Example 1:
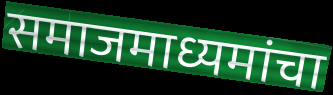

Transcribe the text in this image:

समाजमाध्यमांचा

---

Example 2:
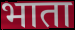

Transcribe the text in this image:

भाता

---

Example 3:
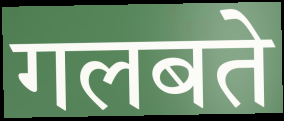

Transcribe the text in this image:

गलबते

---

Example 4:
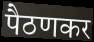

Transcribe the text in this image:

पैठणकर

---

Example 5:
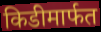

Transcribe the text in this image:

किडीमार्फत